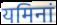
यमिनां